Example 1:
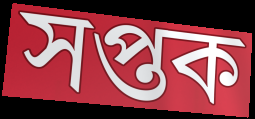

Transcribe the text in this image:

সপ্তক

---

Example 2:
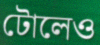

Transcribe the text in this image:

টোলেও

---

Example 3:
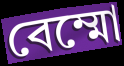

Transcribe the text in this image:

বেম্মো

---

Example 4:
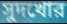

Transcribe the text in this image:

সুদখোর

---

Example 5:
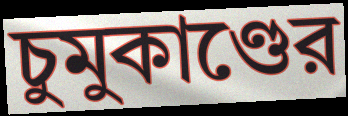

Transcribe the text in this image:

চুমুকাণ্ডের